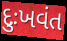
દુઃખવંત